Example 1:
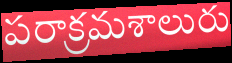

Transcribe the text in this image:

పరాక్రమశాలురు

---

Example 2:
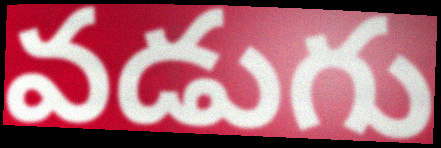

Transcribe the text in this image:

వడుగు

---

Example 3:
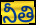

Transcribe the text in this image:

నీతి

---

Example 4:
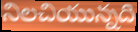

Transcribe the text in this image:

నిలచియున్నది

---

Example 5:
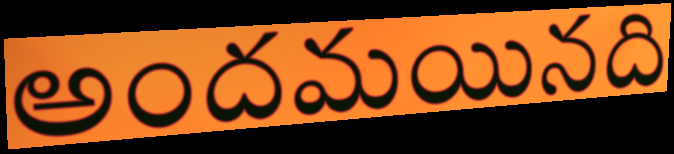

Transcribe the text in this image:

అందమయినది